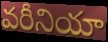
వరీనియా